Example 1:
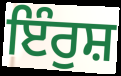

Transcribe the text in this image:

ਇੰਰੁਸ਼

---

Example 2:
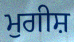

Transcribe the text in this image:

ਮੁਗੀਸ਼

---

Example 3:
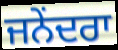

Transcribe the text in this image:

ਜਨੇਂਦਰਾ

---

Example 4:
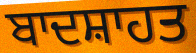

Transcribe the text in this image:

ਬਾਦਸ਼ਾਹਤ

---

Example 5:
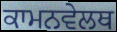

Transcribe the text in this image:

ਕਾਮਨਵੇਲਥ